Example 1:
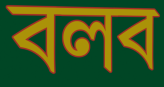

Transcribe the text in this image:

বলব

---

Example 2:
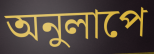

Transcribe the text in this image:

অনুলাপে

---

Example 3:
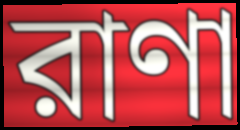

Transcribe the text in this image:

রাণা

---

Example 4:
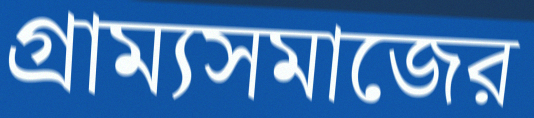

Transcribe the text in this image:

গ্রাম্যসমাজের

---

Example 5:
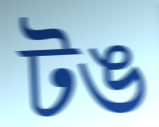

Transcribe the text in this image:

টঙ